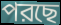
পরছে